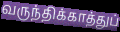
வருந்திக்காத்துப்